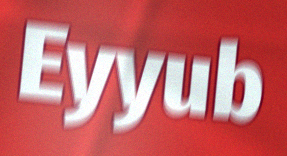
Eyyub